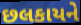
છલકાયને